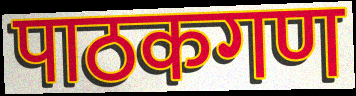
पाठकगण